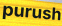
purush